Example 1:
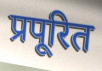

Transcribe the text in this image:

प्रपूरित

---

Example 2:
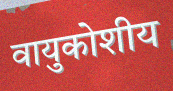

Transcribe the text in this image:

वायुकोशीय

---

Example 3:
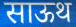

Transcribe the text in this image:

साऊथ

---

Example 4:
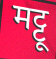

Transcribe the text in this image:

मट्टू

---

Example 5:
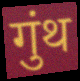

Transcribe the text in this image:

गुंथ